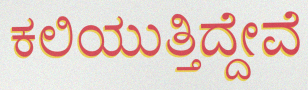
ಕಲಿಯುತ್ತಿದ್ದೇವೆ